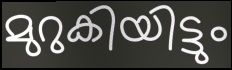
മുറുകിയിട്ടും